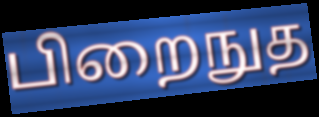
பிறைநுத